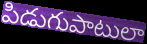
పిడుగుపాటులా